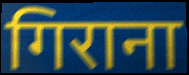
गिराना